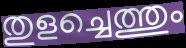
തുളച്ചെത്തും